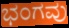
ಭಂಗವು